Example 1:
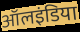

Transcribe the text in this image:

ऑलइंडिया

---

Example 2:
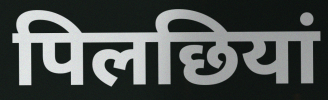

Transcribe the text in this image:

पिलछियां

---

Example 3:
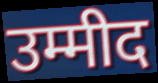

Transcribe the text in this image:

उम्‍मीद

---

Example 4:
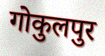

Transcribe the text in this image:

गोकुलपुर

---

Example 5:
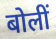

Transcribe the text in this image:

बोलीं